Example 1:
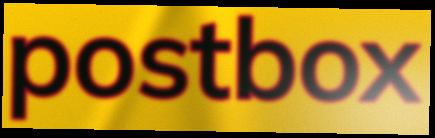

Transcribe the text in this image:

postbox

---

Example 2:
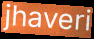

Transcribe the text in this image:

jhaveri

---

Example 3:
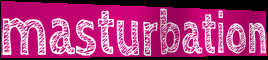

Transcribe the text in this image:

masturbation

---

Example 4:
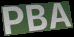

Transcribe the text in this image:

PBA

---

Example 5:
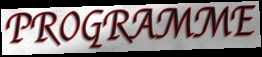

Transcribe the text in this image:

PROGRAMME